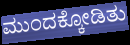
ಮುಂದಕ್ಕೋಡಿತು